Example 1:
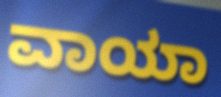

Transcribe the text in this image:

ವಾಯಾ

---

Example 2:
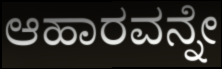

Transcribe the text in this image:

ಆಹಾರವನ್ನೇ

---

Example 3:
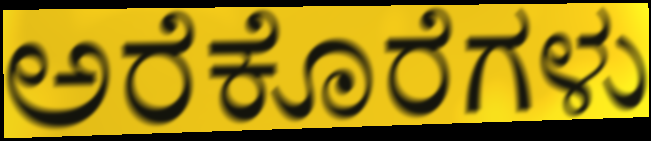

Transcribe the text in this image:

ಅರೆಕೊರೆಗಳು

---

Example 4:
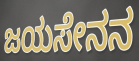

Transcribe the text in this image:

ಜಯಸೇನನ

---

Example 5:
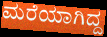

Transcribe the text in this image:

ಮರೆಯಾಗಿದ್ದ